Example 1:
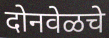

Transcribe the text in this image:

दोनवेळचे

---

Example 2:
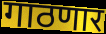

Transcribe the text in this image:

गाठणार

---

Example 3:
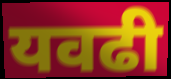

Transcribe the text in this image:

यवढी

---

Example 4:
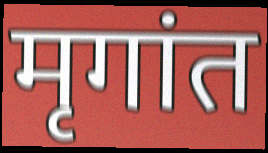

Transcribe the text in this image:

मृगांत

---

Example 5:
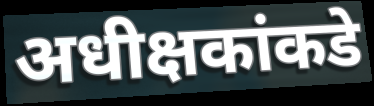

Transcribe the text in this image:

अधीक्षकांकडे